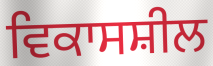
ਵਿਕਾਸਸ਼ੀਲ